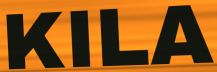
KILA